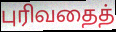
புரிவதைத்